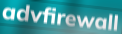
advfirewall